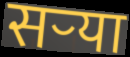
सऱ्या